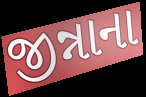
જીન્નાના